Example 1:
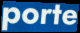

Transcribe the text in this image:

porte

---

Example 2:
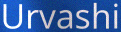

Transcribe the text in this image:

Urvashi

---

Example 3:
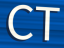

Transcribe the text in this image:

CT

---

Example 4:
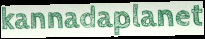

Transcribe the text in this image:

kannadaplanet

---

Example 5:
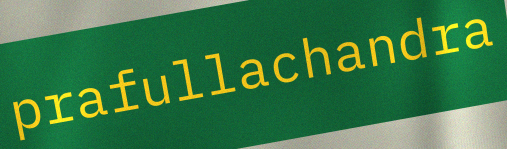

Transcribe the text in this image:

prafullachandra